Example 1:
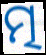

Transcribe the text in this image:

ତ୍ମ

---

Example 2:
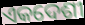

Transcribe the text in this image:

ଏକଦେଶୀ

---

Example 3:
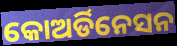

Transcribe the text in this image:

କୋଅର୍ଡିନେସନ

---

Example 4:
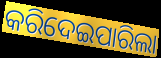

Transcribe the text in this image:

କରିଦେଇପାରିଲା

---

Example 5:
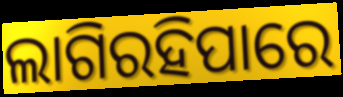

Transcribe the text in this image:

ଲାଗିରହିପାରେ